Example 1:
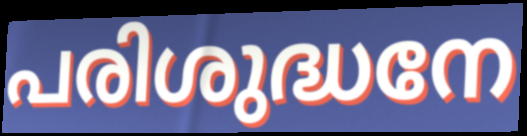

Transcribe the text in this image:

പരിശുദ്ധനേ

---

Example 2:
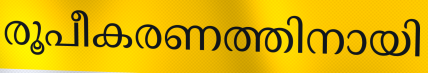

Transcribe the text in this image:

രൂപീകരണത്തിനായി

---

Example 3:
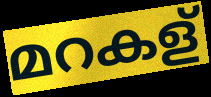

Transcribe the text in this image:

മറകള്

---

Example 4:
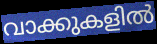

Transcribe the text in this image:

വാക്കുകളിൽ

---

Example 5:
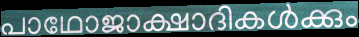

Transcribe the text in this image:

പാഥോജാക്ഷാദികൾക്കും